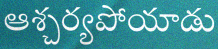
ఆశ్చర్యపోయాడు